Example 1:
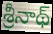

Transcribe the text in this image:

శ్రీనాథ్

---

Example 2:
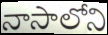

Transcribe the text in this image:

నాసాలోని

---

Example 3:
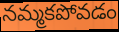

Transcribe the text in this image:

నమ్మకపోవడం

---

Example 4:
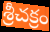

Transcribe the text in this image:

శ్రీచక్రం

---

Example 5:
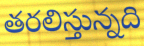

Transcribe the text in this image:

తరలిస్తున్నది